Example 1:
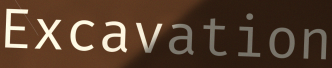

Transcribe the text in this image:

Excavation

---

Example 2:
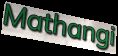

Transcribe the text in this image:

Mathangi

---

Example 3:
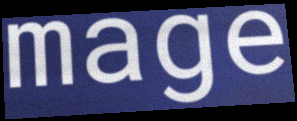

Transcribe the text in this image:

mage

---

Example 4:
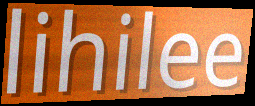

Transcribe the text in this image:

lihilee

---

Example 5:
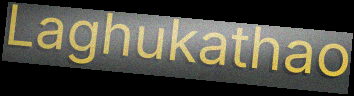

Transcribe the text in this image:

Laghukathao